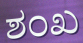
ಶಂಖ